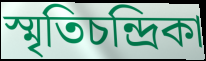
স্মৃতিচন্দ্রিকা